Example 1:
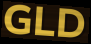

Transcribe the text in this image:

GLD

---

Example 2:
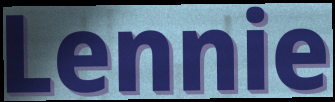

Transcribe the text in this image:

Lennie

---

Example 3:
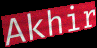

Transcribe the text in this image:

Akhir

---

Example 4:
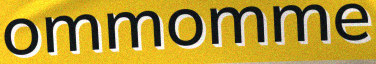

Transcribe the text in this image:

ommomme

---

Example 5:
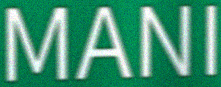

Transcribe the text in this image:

MANI